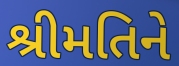
શ્રીમતિને